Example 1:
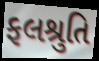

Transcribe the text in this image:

ફલશ્રુતિ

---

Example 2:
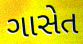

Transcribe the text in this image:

ગાસેત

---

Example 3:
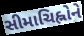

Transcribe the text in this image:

સીમાચિહ્નોને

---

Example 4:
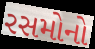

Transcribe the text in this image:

રસમોનો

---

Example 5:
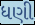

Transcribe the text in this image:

ધણી